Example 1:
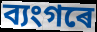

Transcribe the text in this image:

ব্যংগৰে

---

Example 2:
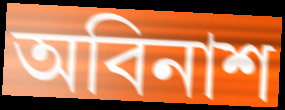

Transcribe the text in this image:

অবিনাশ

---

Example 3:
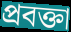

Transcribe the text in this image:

প্ৰবক্তা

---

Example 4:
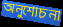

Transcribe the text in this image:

অনুশোচনা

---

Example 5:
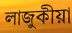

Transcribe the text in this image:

লাজুকীয়া